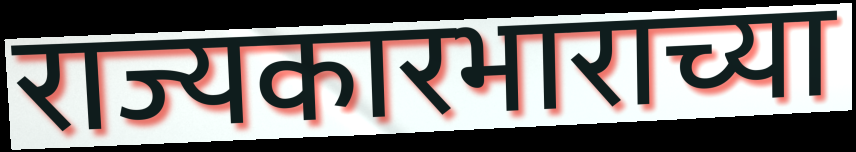
राज्यकारभाराच्या